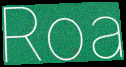
Roa